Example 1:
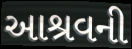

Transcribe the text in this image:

આશ્રવની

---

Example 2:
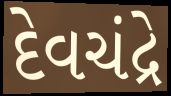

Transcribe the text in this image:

દેવચંદ્રે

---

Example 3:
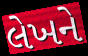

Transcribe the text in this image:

લેખને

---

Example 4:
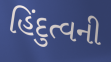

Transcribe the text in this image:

હિંદુત્વની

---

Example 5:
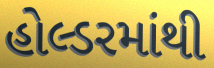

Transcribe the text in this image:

હોલ્ડરમાંથી